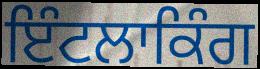
ਇੰਟਲਾਕਿੰਗ